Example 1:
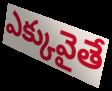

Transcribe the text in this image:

ఎక్కువైతే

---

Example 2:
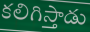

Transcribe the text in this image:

కలిగిస్తాడు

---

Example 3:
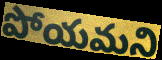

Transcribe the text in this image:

పోయమని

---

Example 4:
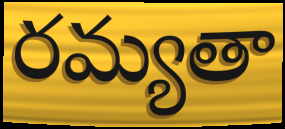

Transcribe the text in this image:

రమ్యతా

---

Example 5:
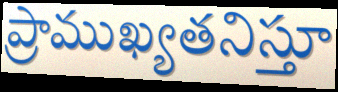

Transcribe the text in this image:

ప్రాముఖ్యతనిస్తూ